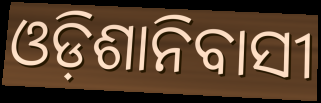
ଓଡ଼ିଶାନିବାସୀ